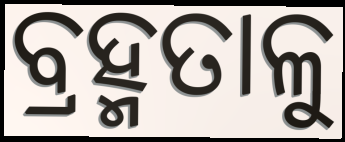
ବ୍ରହ୍ମତାଳୁ